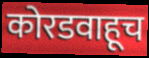
कोरडवाहूच